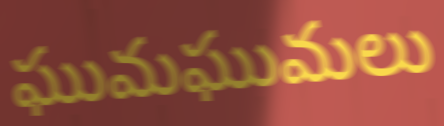
ఘుమఘుమలు